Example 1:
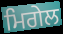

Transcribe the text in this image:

ਮਿਗੇਲ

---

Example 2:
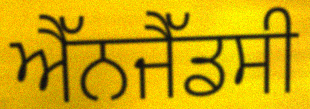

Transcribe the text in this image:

ਐੱਨਜੈੱਡਸੀ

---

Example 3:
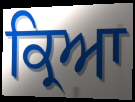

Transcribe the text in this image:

ਕ੍ਰਿਆ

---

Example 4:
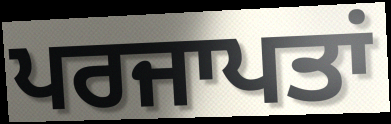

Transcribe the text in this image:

ਪਰਜਾਪਤਾਂ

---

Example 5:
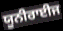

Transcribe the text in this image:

ਯੂਨੀਰਾਈਜ